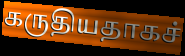
கருதியதாகச்